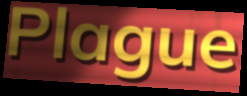
Plague